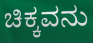
ಚಿಕ್ಕವನು